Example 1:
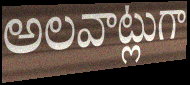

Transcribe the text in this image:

అలవాట్లుగా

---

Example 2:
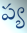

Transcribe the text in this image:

ప్య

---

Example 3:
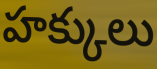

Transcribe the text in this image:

హక్కులు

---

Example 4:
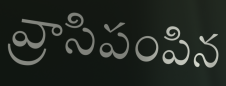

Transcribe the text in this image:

వ్రాసిపంపిన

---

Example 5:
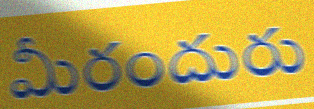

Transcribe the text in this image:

మీరందురు